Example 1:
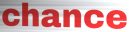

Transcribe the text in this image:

chance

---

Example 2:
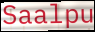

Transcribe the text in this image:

Saalpu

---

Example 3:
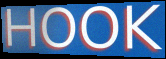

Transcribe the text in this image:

HOOK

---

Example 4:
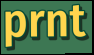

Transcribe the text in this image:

prnt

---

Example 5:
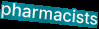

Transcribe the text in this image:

pharmacists